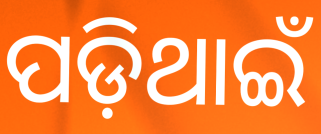
ପଡ଼ିଥାଇଁ